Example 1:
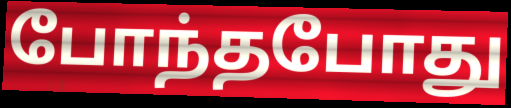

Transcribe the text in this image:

போந்தபோது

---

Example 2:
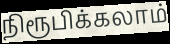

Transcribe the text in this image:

நிரூபிக்கலாம்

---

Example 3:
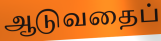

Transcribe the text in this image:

ஆடுவதைப்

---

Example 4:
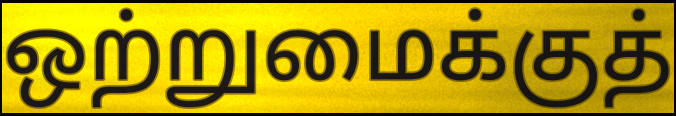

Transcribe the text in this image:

ஒற்றுமைக்குத்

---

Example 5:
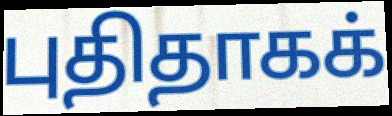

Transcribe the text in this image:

புதிதாகக்